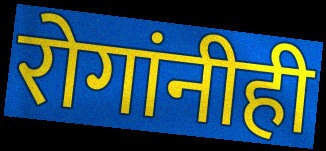
रोगांनीही